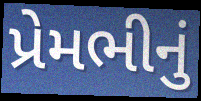
પ્રેમભીનું